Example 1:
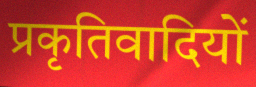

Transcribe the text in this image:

प्रकृतिवादियों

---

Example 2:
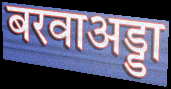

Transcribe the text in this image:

बरवाअड्डा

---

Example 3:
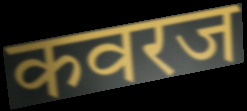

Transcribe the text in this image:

कवरज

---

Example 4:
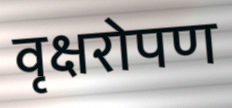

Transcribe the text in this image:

वृक्षरोपण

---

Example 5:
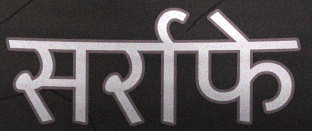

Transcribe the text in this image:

सर्राफे